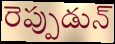
రెప్పుడున్